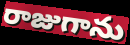
రాజుగాను